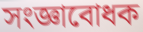
সংজ্ঞাবোধক